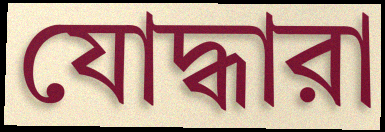
যোদ্ধারা